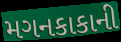
મગનકાકાની